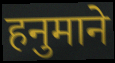
हनुमाने